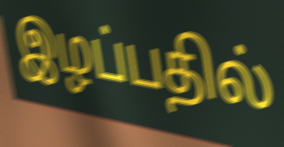
இழப்பதில்